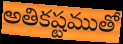
అతికష్టముతో